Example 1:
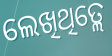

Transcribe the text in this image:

ଲେଖିଥିତ୍ଲେ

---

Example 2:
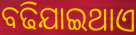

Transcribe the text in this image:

ବଢିଯାଇଥାଏ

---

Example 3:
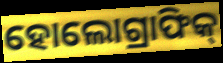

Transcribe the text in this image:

ହୋଲୋଗ୍ରାଫିକ୍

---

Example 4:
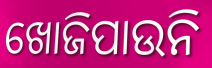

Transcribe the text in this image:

ଖୋଜିପାଉନି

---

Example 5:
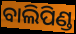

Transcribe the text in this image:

ବାଲିପିଣ୍ଡ